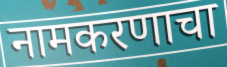
नामकरणाचा